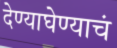
देण्याघेण्याचं